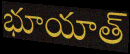
భూయాత్